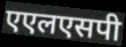
एएलएसपी